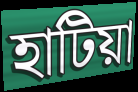
হাটিয়া